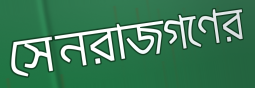
সেনরাজগণের